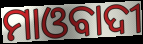
ମାଓବାଦୀ